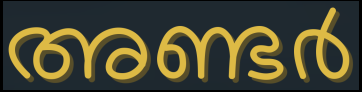
അണ്ടർ